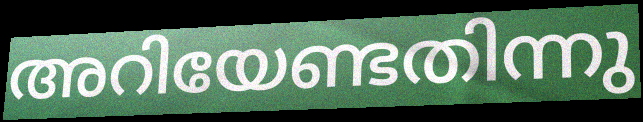
അറിയേണ്ടതിന്നു